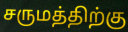
சருமத்திற்கு